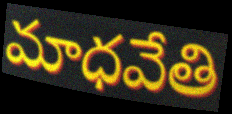
మాధవేతి